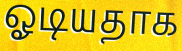
ஓடியதாக